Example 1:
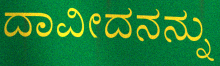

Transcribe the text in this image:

ದಾವೀದನನ್ನು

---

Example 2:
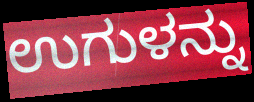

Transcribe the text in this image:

ಉಗುಳನ್ನು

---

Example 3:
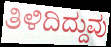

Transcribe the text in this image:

ತಿಳಿದಿದ್ದುವು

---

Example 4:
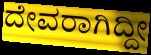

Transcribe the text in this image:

ದೇವರಾಗಿದ್ದೀ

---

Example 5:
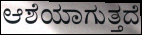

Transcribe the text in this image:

ಆಶೆಯಾಗುತ್ತದೆ